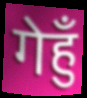
गेहुँ